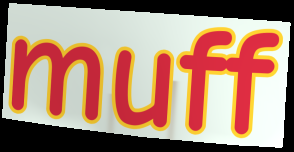
muff